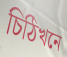
চিঠিখনে